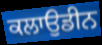
ਕਲਾਉਡੀਨ